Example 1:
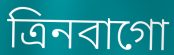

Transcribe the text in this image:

ত্রিনবাগো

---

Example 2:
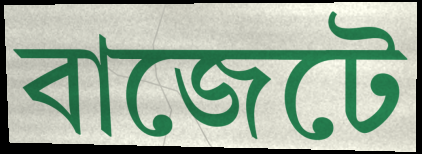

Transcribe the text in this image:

বাজেটে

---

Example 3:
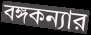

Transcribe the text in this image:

বঙ্গকন্যার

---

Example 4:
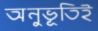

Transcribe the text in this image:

অনুভূতিই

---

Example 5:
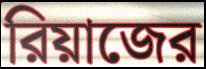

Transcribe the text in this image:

রিয়াজের